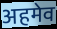
अहमेव